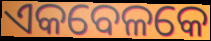
ଏକବେଳକେ